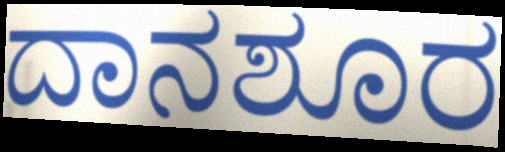
ದಾನಶೂರ